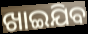
ଖାଇଯିବ